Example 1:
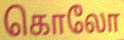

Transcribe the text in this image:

கொலோ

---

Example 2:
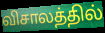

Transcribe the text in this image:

விசாலத்தில்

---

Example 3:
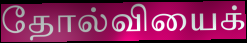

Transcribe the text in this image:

தோல்வியைக்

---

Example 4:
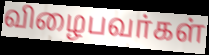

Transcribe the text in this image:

விழைபவர்கள்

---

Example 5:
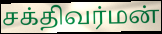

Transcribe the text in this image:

சக்திவர்மன்